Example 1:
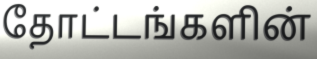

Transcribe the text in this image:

தோட்டங்களின்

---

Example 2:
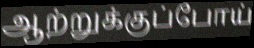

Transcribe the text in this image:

ஆற்றுக்குப்போய்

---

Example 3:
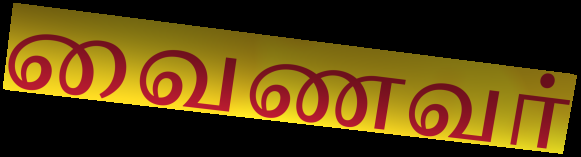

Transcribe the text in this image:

வைணவர்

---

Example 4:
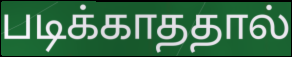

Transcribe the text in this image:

படிக்காததால்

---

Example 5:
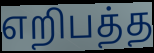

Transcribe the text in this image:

எறிபத்த